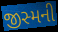
જીસ્મની